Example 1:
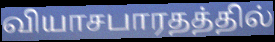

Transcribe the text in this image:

வியாசபாரதத்தில்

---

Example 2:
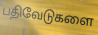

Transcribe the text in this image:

பதிவேடுகளை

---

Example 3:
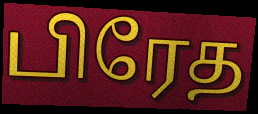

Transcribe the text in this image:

பிரேத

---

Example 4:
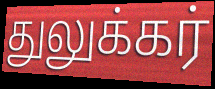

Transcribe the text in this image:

துலுக்கர்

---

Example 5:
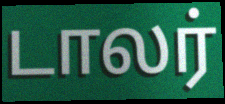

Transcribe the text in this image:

டாலர்